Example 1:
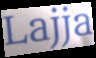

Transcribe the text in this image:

Lajja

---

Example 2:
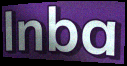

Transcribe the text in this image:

Inba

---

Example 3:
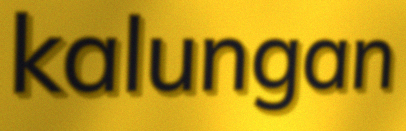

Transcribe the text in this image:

kalungan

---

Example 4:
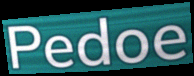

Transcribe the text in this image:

Pedoe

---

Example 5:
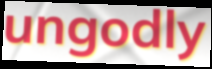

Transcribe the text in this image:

ungodly